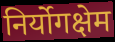
निर्योगक्षेम